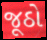
જૂઠો